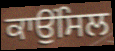
ਕਾਉਂਸਿਲ